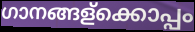
ഗാനങ്ങള്ക്കൊപ്പം